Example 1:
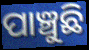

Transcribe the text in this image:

ପାଞ୍ଚୁଛି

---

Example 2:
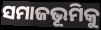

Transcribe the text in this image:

ସମାଜଭୂମିକୁ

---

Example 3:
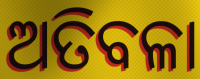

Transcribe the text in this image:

ଅତିବଳା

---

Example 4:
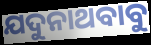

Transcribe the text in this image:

ଯଦୁନାଥବାବୁ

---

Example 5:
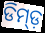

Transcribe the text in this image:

ଡିମ୍ଡ଼